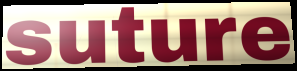
suture